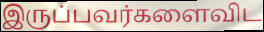
இருப்பவர்களைவிட